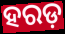
ହରଡ଼